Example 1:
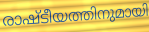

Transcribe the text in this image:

രാഷ്ടീയത്തിനുമായി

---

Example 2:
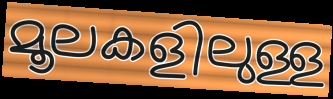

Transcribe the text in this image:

മൂലകളിലുള്ള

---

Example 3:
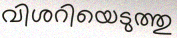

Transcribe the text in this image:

വിശറിയെടുത്തു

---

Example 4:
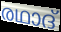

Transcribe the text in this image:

രഥാദ്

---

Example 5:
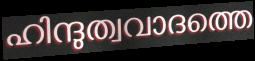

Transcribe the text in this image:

ഹിന്ദുത്വവാദത്തെ